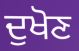
ਦੁਖੋਣ